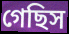
গেছিস